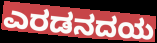
ಎರಡನದಯ